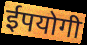
ईपयोगी